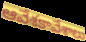
ఆవేశకావేశాలు